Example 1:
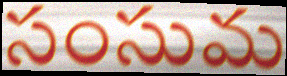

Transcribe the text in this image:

సంసుమ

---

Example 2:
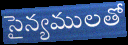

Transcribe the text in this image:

సైన్యములతో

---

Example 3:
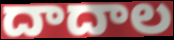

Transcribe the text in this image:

దాదాల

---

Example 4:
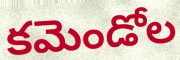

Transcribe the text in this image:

కమెండోల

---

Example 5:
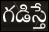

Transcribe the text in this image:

గడిస్తే